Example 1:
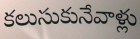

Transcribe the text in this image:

కలుసుకునేవాళ్లు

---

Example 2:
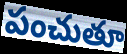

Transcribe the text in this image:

పంచుతూ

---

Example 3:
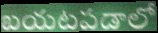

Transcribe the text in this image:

బయటపడాలో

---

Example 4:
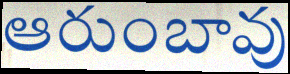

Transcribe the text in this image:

ఆరుంబావు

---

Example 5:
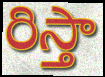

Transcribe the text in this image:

రిస్తా